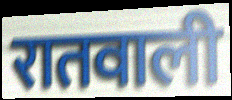
रातवाली